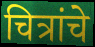
चित्रांचे